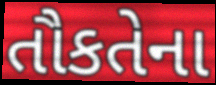
તૌકતેના